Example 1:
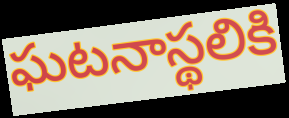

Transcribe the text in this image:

ఘటనాస్థలికి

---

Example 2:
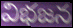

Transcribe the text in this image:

విభజన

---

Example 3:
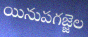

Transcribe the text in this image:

యినుపగజ్జెల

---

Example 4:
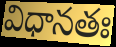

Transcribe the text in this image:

విధానతః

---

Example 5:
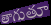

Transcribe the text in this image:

తాగుతూ